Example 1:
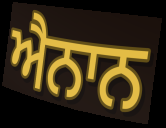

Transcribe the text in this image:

ਐਨਾਨ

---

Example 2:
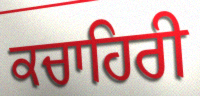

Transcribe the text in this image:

ਕਚਾਹਿਰੀ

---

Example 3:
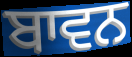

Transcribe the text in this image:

ਬਾਵਨ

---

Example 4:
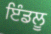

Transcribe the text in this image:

ਇੰਡਲੂ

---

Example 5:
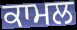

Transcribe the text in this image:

ਕਾਮਲ